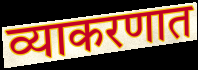
व्याकरणात